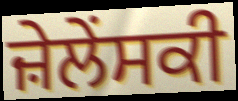
ਜ਼ੇਲੇਂਸਕੀ